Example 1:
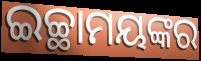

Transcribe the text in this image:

ଇଚ୍ଛାମୟଙ୍କର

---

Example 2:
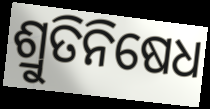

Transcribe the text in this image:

ଶ୍ରୁତିନିଷେଧ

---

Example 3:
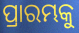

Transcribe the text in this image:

ପ୍ରାରମ୍ଭକୁ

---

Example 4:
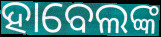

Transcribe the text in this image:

ହାବେଲଙ୍କ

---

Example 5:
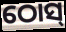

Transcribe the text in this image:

ଠୋସ୍